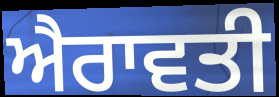
ਐਰਾਵਤੀ